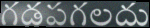
గడపగలదు